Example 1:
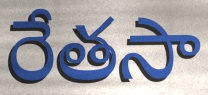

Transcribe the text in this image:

రేతసా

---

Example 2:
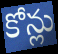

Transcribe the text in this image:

కోన్లు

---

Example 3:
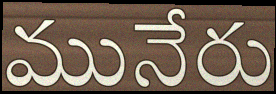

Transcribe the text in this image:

మునేరు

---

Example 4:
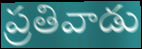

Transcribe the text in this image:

ప్రతివాడు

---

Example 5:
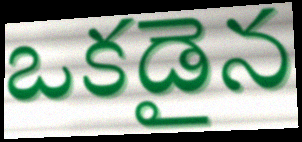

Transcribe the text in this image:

ఒకడైన